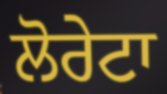
ਲੋਰੇਟਾ